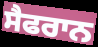
ਸੈਫਰਾਨ